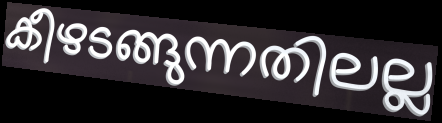
കീഴടങ്ങുന്നതിലല്ല